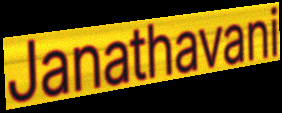
Janathavani